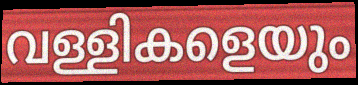
വള്ളികളെയും